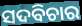
ସଦବିଚାର